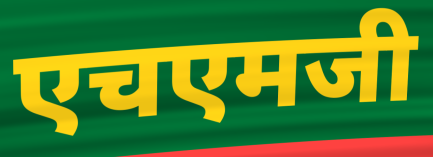
एचएमजी